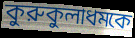
কুরুকুলাধমকে